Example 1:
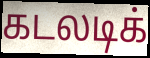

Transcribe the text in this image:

கடலடிக்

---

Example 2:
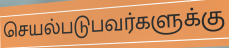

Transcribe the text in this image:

செயல்படுபவர்களுக்கு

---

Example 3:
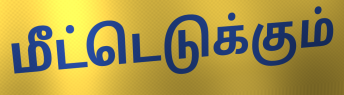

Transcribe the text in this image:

மீட்டெடுக்கும்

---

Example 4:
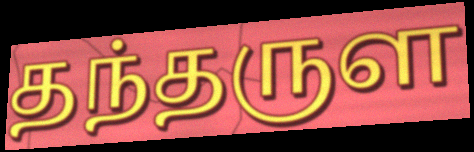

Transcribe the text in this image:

தந்தருள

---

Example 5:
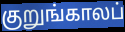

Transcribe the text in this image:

குறுங்காலப்